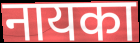
नायका